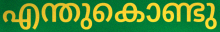
എന്തുകൊണ്ടു